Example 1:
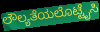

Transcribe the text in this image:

ಲೌಲ್ಯತೆಯಲೊಟ್ಟೈಸಿ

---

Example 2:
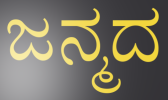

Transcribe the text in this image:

ಜನ್ಮದ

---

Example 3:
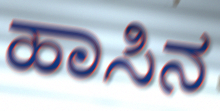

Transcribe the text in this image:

ಹಾಸಿನ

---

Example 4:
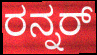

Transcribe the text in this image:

ರನ್ನರ್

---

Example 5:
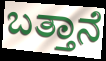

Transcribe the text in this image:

ಬತ್ತಾನೆ